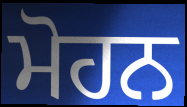
ਮੋਹਨ